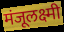
मंजूलक्ष्मी